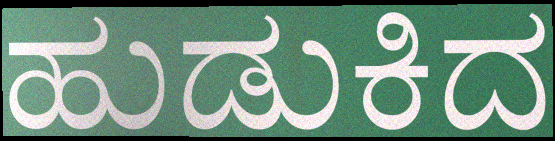
ಹುಡುಕಿದ